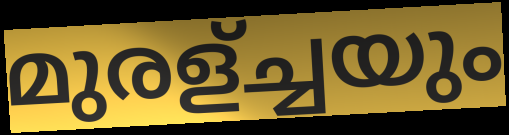
മുരള്ച്ചയും